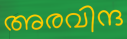
അരവിന്ദ